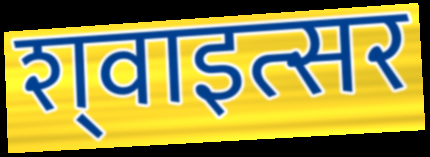
श्वाइत्सर